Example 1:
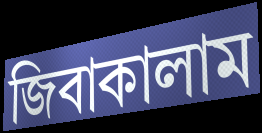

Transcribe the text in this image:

জিবাকালাম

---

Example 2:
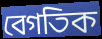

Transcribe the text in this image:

বেগতিক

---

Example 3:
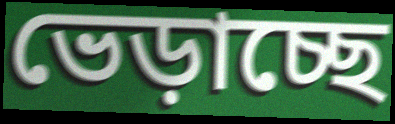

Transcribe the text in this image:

ভেড়াচ্ছে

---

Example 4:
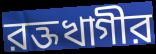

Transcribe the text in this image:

রক্তখাগীর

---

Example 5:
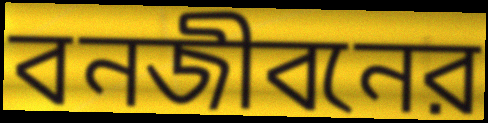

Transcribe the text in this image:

বনজীবনের